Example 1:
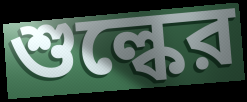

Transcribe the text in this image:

শুল্কের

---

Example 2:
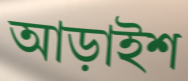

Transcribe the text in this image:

আড়াইশ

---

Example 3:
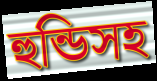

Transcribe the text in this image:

হুন্ডিসহ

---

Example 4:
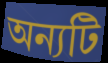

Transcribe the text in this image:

অন্যটি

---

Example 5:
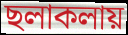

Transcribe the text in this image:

ছলাকলায়